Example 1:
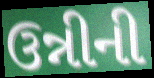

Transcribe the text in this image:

ઉન્નીની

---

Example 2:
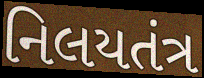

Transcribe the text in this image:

નિલયતંત્ર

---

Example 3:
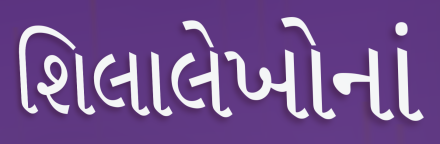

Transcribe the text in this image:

શિલાલેખોનાં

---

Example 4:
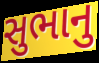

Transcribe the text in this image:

સુભાનુ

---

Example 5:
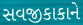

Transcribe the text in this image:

સવજીકાકાને